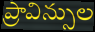
ప్రావిన్సుల